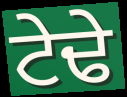
ਟੇਢੇ